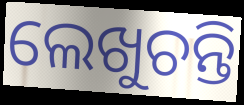
ଲେଖୁଚନ୍ତି